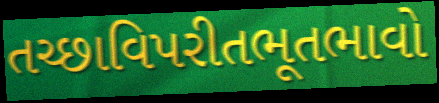
તચ્છાવિપરીતભૂતભાવો